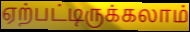
ஏற்பட்டிருக்கலாம்